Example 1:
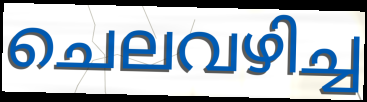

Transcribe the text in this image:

ചെലവഴിച്ച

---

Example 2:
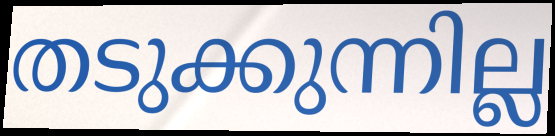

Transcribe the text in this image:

തടുക്കുന്നില്ല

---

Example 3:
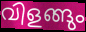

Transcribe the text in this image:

വിളങ്ങും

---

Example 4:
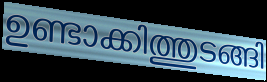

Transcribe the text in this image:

ഉണ്ടാക്കിത്തുടങ്ങി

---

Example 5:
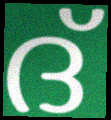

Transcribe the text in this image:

ദ്